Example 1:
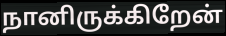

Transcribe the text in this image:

நானிருக்கிறேன்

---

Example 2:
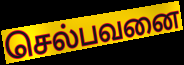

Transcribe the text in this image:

செல்பவனை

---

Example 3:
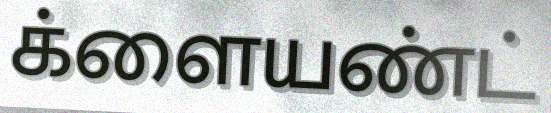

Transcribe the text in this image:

க்ளையண்ட்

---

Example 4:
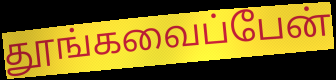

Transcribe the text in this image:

தூங்கவைப்பேன்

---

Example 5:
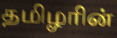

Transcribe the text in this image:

தமிழரின்